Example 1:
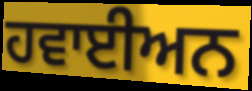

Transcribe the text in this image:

ਹਵਾਈਅਨ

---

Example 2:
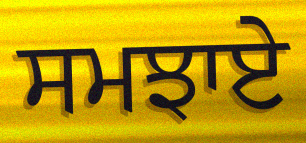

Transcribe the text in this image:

ਸਮਝਾਏ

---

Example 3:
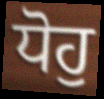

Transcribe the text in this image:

ਧੋਹੁ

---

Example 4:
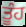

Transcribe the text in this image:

ਤੂੰਹ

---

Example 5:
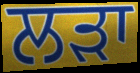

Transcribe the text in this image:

ਲੜਾ